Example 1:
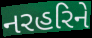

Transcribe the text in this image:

નરહરિને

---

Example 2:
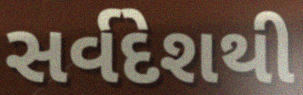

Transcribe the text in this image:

સર્વદેશથી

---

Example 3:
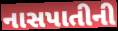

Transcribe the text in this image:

નાસપાતીની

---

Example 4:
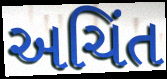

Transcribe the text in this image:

અચિંત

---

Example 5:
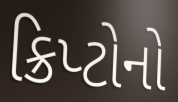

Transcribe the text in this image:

ક્રિપ્ટોનો